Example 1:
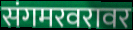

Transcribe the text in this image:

संगमरवरावर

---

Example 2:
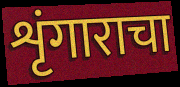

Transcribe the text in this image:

शृंगाराचा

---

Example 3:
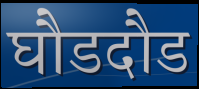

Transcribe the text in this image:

घौडदौड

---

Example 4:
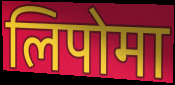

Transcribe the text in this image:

लिपोमा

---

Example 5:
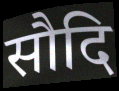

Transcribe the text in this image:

सौदि